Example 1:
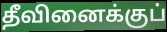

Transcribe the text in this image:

தீவினைக்குப்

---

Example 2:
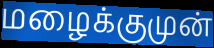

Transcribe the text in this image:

மழைக்குமுன்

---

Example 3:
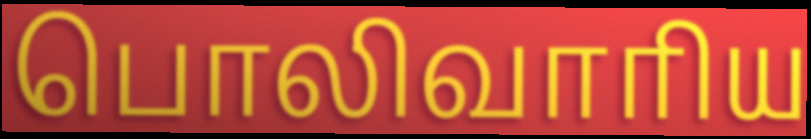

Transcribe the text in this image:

பொலிவாரிய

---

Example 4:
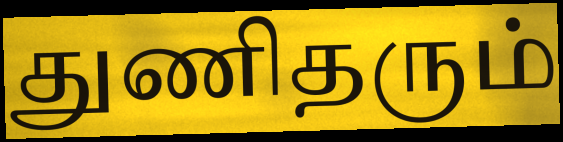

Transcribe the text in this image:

துணிதரும்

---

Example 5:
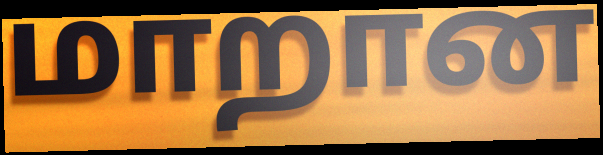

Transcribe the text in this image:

மாறான